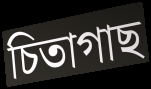
চিতাগাছ